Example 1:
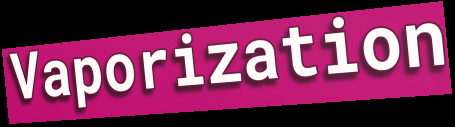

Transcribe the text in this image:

Vaporization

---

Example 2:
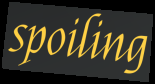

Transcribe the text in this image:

spoiling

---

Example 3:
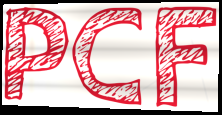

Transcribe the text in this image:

PCF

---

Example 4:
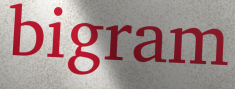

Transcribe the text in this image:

bigram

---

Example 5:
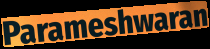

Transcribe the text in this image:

Parameshwaran